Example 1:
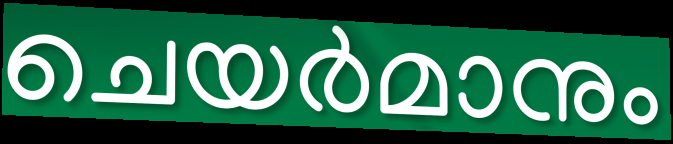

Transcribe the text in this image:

ചെയർമാനും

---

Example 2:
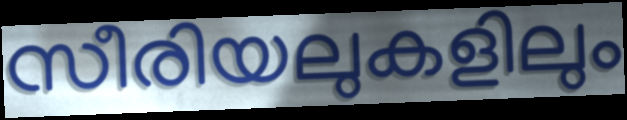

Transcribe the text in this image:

സീരിയലുകളിലും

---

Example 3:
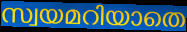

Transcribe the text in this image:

സ്വയമറിയാതെ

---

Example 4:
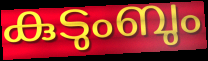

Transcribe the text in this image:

കുടുംബും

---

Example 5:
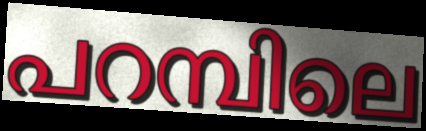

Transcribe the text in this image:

പറമ്പിലെ